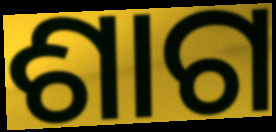
ଶାଗ